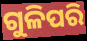
ଗୁଳିପରି